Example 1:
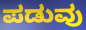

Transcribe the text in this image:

ಪಡುವು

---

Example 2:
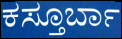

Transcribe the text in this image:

ಕಸ್ತೂರ್ಬಾ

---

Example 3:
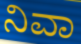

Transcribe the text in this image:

ನಿವಾ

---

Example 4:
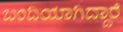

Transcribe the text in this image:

ಬಂದಿಯಾಗಿದ್ದಾರೆ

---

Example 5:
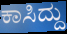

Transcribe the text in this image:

ಕಾಸಿದ್ದು